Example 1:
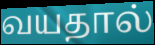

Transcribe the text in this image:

வயதால்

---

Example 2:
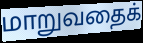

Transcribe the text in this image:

மாறுவதைக்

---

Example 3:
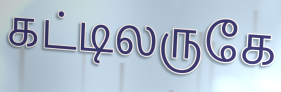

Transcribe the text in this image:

கட்டிலருகே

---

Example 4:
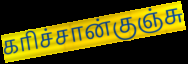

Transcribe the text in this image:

கரிச்சான்குஞ்சு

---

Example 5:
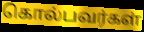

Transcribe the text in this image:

கொல்பவர்கள்